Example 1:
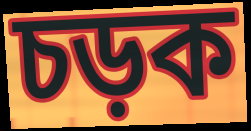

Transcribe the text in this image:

চড়ক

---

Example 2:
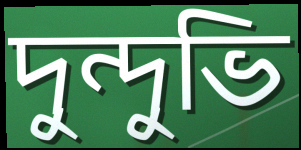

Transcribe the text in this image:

দুন্দুভি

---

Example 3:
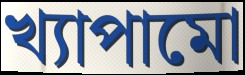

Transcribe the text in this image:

খ্যাপামো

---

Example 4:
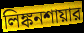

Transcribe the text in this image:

লিঙ্কনশায়ার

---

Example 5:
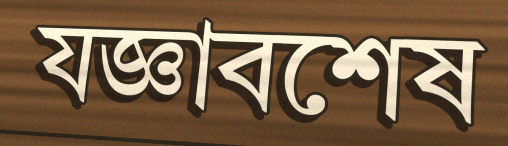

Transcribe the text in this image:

যজ্ঞাবশেষ